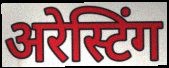
अरेस्टिंग